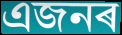
এজনৰ